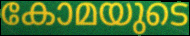
കോമയുടെ